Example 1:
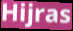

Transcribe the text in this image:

Hijras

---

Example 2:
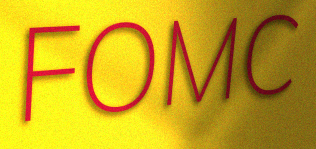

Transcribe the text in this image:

FOMC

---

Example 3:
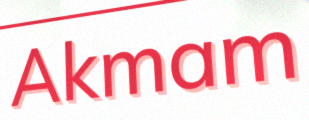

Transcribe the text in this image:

Akmam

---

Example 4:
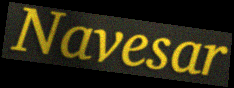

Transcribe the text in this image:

Navesar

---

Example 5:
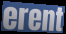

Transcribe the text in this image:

erent